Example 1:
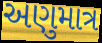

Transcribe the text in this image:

અણુમાત્ર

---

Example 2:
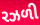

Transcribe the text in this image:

રઝળી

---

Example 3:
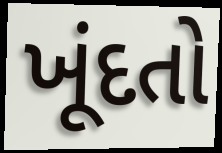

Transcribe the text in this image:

ખૂંદતો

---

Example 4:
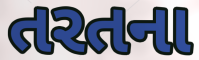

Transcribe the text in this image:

તરતના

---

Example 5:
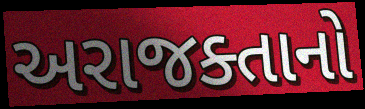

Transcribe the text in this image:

અરાજક્તાનો